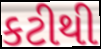
કટીથી